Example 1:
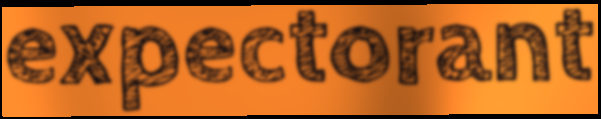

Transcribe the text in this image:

expectorant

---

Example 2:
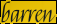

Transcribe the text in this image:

barren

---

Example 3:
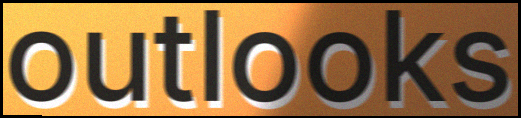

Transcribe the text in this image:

outlooks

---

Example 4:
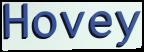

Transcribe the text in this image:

Hovey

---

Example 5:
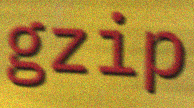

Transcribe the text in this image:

gzip